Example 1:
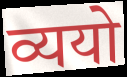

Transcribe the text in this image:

व्ययो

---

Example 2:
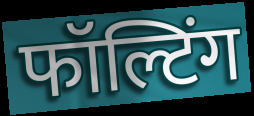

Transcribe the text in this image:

फॉल्टिंग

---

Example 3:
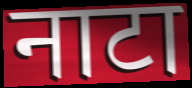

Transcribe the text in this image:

नाटा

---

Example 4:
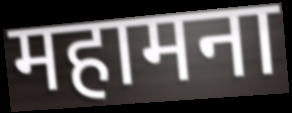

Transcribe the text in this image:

महामना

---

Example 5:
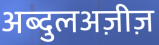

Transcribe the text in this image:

अब्दुलअज़ीज़